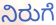
ನಿರುಗೆ